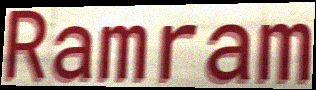
Ramram